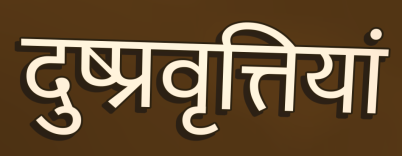
दुष्प्रवृत्तियां